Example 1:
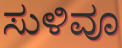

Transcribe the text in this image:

ಸುಳಿವೂ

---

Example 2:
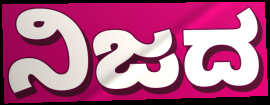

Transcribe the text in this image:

ನಿಜದ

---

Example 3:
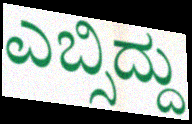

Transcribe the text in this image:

ಎಬ್ಸಿದ್ದು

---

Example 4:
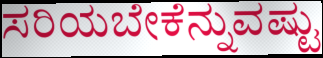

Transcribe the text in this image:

ಸರಿಯಬೇಕೆನ್ನುವಷ್ಟು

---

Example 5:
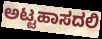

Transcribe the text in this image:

ಅಟ್ಟಹಾಸದಲಿ